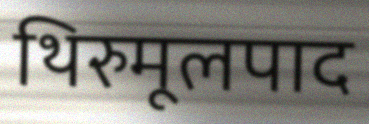
थिरुमूलपाद